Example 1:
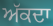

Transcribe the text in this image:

ਅੱਕਦਾ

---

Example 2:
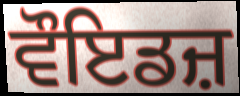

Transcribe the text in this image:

ਵੌਇਡਜ਼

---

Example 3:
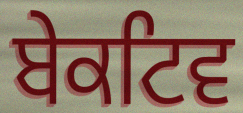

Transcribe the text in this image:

ਬੇਕਟਿਵ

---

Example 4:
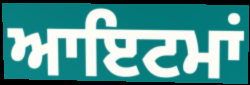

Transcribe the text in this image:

ਆਇਟਮਾਂ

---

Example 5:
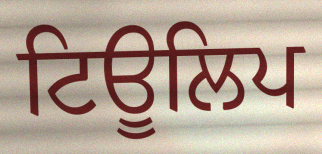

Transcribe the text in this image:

ਟਿਊਲਿਪ